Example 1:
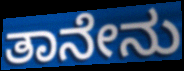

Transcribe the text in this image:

ತಾನೇನು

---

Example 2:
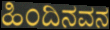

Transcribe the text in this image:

ಹಿಂದಿನವನ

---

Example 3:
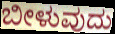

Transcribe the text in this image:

ಬೀಳುವುದು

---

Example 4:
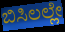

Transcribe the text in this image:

ಬಿಸಿಲಲ್ಲೇ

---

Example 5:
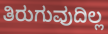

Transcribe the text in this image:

ತಿರುಗುವುದಿಲ್ಲ